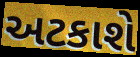
અટકાશે